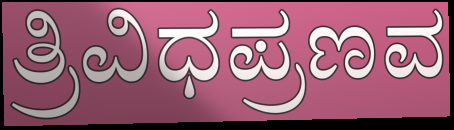
ತ್ರಿವಿಧಪ್ರಣವ